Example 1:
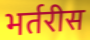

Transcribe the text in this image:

भर्तरीस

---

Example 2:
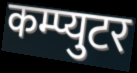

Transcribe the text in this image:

कम्प्युटर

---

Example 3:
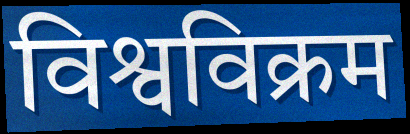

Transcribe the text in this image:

विश्वविक्रम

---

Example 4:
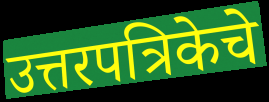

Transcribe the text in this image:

उत्तरपत्रिकेचे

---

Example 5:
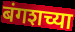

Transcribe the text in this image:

बंगशच्या